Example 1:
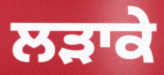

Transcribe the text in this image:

ਲੜਾਕੇ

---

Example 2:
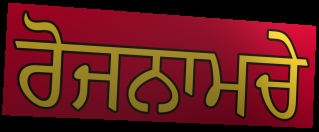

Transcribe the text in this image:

ਰੋਜਨਾਮਚੇ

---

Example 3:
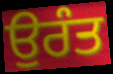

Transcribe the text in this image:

ਉਰੰਤ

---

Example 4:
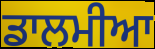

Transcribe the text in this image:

ਡਾਲਮੀਆ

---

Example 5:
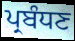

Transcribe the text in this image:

ਪ੍ਰਬੰਧਣ